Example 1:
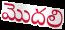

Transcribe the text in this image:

మొదలి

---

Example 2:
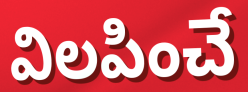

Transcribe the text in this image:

విలపించే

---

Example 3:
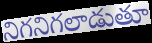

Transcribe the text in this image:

నిగనిగలాడుతూ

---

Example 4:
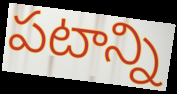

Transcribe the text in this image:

పటాన్ని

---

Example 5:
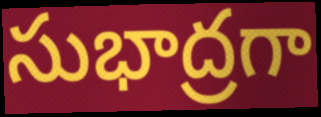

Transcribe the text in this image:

సుభాద్రగా